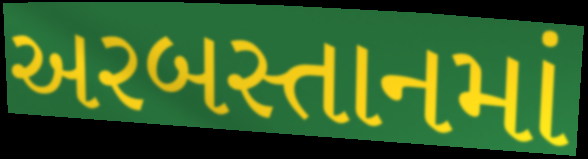
અરબસ્તાનમાં